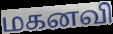
மகனவி